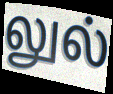
லுல்